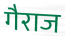
गैराज